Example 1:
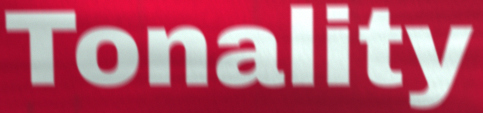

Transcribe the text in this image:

Tonality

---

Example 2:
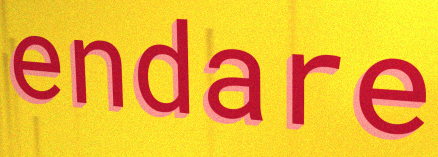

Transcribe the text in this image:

endare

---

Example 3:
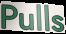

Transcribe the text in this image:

Pulls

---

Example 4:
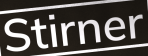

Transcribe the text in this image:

Stirner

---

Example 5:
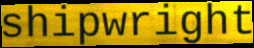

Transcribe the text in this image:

shipwright